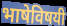
भाषेविषयी